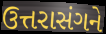
ઉત્તરાસંગને